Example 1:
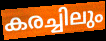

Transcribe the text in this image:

കരച്ചിലും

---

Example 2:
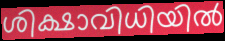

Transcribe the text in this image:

ശിക്ഷാവിധിയിൽ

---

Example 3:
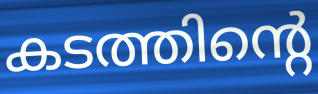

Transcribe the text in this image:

കടത്തിന്റെ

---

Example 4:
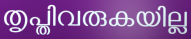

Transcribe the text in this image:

തൃപ്തിവരുകയില്ല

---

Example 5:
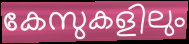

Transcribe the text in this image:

കേസുകളിലും